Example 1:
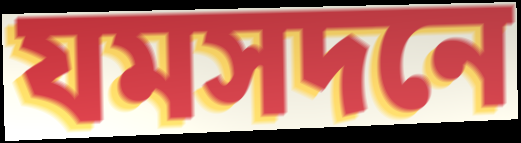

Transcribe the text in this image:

যমসদনে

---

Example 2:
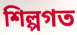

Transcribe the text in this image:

শিল্পগত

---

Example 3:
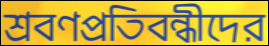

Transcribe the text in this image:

শ্রবণপ্রতিবন্ধীদের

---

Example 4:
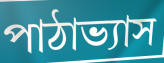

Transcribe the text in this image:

পাঠাভ্যাস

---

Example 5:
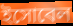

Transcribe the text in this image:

ইসোবেল